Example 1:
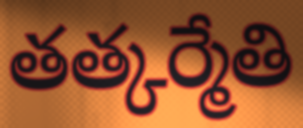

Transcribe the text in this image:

తత్కర్మేతి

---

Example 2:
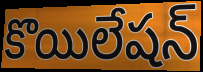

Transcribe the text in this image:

కొయిలేషన్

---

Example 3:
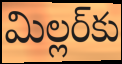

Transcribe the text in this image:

మిల్లర్‌కు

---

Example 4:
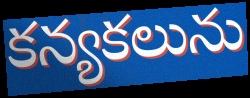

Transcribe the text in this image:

కన్యకలును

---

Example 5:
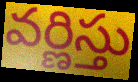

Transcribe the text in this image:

వర్ణిస్తు